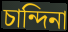
চান্দিনা